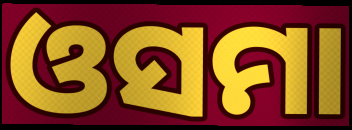
ଓସମା